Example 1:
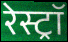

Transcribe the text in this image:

रेस्ट्रॉ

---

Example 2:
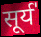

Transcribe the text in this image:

सूर्य॑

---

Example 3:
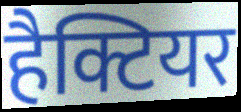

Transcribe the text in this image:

हैक्टियर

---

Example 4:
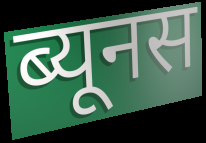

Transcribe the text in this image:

ब्यूनस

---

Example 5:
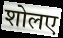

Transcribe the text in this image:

शोलए